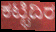
ಕಟ್ಟಿದಿರ